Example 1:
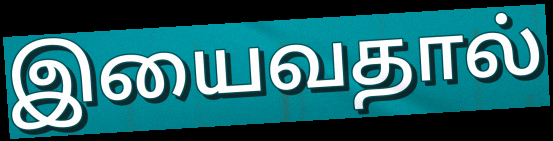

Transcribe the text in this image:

இயைவதால்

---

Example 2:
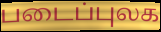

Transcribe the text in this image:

படைப்புலக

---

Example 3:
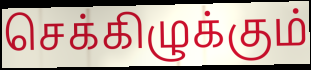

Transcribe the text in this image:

செக்கிழுக்கும்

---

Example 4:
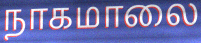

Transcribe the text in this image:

நாகமாலை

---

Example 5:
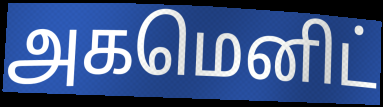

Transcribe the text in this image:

அகமெனிட்